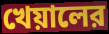
খেয়ালের